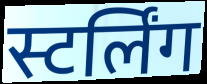
स्टर्लिंग